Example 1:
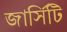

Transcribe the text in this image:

জার্সিটি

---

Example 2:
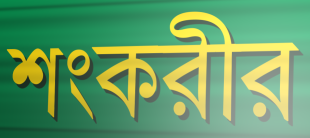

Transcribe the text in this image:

শংকরীর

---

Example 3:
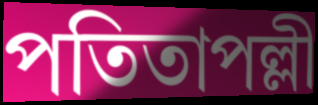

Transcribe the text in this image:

পতিতাপল্লী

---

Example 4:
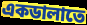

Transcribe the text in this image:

একডালাতে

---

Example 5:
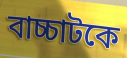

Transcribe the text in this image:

বাচ্চাটকে